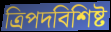
ত্রিপদবিশিষ্ট